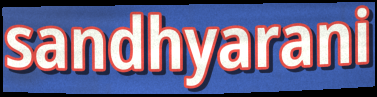
sandhyarani